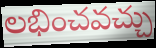
లభించవచ్చు